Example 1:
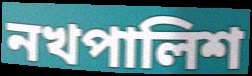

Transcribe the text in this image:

নখপালিশ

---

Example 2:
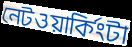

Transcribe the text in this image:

নেটওয়ার্কিংটা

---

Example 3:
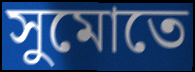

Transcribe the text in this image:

সুমোতে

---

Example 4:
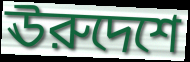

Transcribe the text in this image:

ঊরুদেশে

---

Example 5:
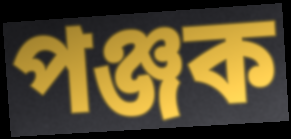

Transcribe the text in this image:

পঞ্জক